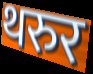
थरुर